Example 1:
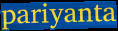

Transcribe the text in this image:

pariyanta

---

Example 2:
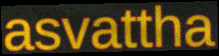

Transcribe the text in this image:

asvattha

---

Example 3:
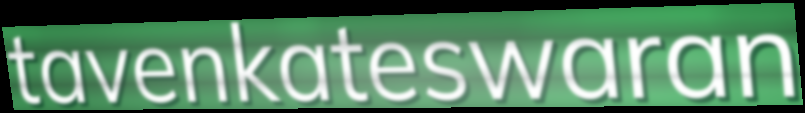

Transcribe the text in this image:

tavenkateswaran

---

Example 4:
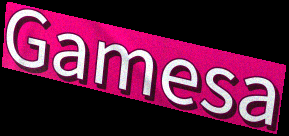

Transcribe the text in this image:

Gamesa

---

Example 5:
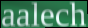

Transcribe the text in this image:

aalech